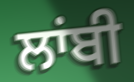
ਲਾਂਬੀ